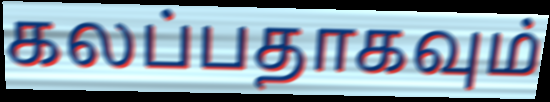
கலப்பதாகவும்